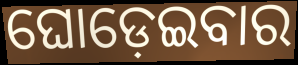
ଘୋଡ଼େଇବାର